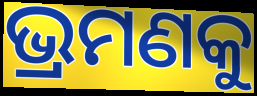
ଭ୍ରମଣକୁ